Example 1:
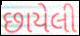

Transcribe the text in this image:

છાયેલી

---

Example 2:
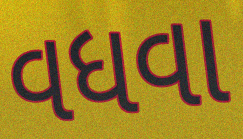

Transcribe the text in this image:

વધવા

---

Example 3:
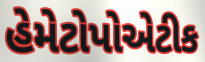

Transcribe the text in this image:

હેમેટોપોએટીક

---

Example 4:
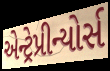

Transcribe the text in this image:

એન્ટ્રેપ્રીન્યોર્સ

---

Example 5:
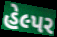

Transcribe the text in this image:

હેલ્પર